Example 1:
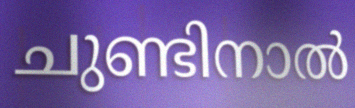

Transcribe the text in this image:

ചുണ്ടിനാൽ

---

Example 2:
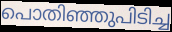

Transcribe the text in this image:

പൊതിഞ്ഞുപിടിച്ച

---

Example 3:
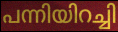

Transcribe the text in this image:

പന്നിയിറച്ചി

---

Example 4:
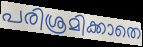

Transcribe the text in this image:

പരിശ്രമിക്കാതെ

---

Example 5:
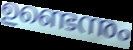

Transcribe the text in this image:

ഉണ്ടെന്നും